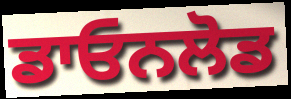
ਡਾਓਨਲੋਡ